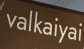
valkaiyai